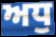
ਅਧੁ